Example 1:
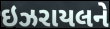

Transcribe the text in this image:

ઇઝરાયલને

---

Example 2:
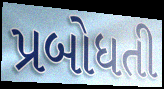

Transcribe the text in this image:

પ્રબોધતી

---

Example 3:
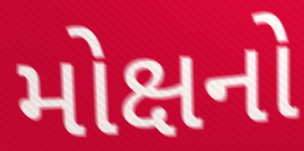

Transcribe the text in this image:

મોક્ષનો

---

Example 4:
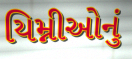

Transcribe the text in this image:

યિમ્નીઓનું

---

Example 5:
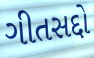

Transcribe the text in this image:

ગીતસદ્દો